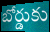
బోర్డుకు